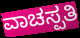
ವಾಚಸ್ಪತಿ